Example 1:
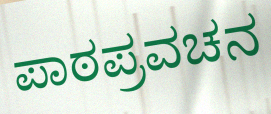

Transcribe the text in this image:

ಪಾಠಪ್ರವಚನ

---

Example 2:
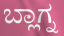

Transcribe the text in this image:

ಬ್ಲಾಗ್ನ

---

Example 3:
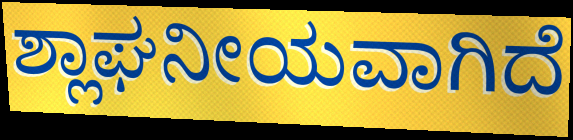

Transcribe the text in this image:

ಶ್ಲಾಘನೀಯವಾಗಿದೆ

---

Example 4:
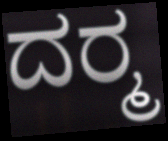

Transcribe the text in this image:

ದರ‍್ಮ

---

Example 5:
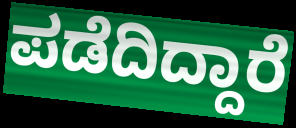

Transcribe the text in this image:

ಪಡೆದಿದ್ದಾರೆ